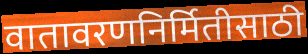
वातावरणनिर्मितीसाठी